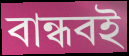
বান্ধবই